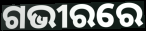
ଗଭୀରରେ